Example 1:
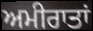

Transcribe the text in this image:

ਅਮੀਰਾਤਾਂ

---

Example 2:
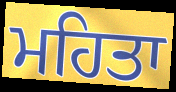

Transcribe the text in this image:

ਮਹਿਤਾ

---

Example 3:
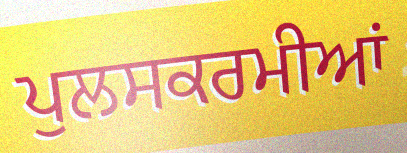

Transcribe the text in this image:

ਪੁਲਸਕਰਮੀਆਂ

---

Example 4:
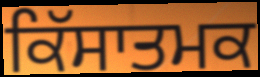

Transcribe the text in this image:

ਕਿੱਸਾਤਮਕ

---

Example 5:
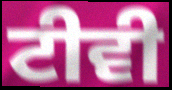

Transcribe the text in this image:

ਟੀਵੀ